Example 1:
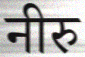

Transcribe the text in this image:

नीरु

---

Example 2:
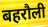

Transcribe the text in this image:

बहरौली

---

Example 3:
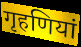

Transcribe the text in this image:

गृहणियां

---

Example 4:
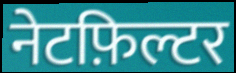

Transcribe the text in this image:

नेटफ़िल्टर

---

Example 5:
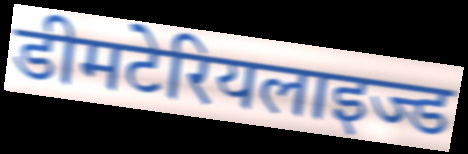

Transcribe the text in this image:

डीमटेरियलाइज्ड